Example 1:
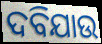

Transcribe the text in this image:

ଦବିଯାଉ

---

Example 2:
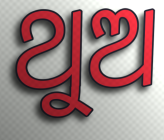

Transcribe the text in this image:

ଥୁଅ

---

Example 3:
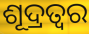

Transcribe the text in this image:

ଶୂଦ୍ରତ୍ଵର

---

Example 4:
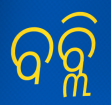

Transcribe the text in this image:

ବବ୍ଲି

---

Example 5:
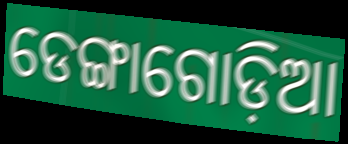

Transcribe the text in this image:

ଡେଙ୍ଗାଗୋଡ଼ିଆ